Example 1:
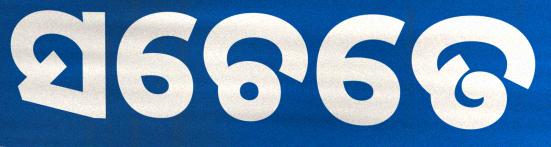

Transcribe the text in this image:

ସଚେତେ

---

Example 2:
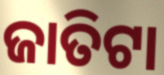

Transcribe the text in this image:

ଜାତିଟା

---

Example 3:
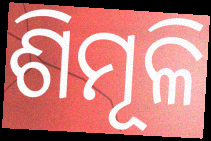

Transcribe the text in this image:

ଶିମୂଳି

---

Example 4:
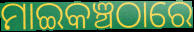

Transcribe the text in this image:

ମାଇକଞ୍ଚଠାରେ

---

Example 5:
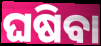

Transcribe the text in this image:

ଘଷିବା